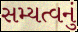
સમ્યત્વનું